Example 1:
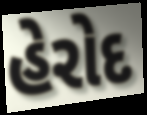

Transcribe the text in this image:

હેરોદ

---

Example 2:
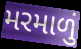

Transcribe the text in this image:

મરમાળું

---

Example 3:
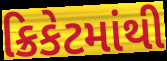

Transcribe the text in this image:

ક્રિકેટમાંથી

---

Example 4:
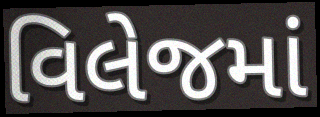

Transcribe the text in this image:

વિલેજમાં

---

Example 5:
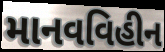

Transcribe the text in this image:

માનવવિહીન